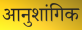
आनुशांगिक